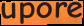
upore